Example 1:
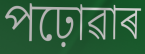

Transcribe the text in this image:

পঢ়োৱাৰ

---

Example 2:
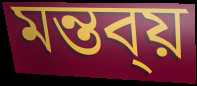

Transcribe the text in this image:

মন্তব্য়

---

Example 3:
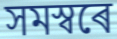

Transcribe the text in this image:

সমস্বৰে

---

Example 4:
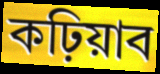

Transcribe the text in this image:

কঢ়িয়াব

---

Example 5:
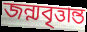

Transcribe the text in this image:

জন্মবৃত্তান্ত